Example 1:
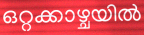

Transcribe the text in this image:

ഒറ്റക്കാഴ്ചയിൽ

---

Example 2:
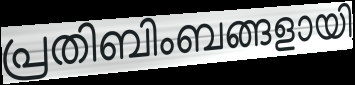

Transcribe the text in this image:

പ്രതിബിംബങ്ങളായി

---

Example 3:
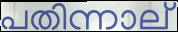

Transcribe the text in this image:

പതിന്നാല്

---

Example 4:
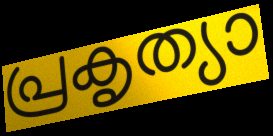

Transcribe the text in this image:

പ്രകൃത്യാ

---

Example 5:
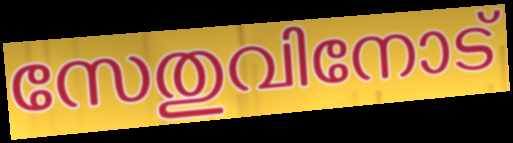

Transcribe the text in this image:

സേതുവിനോട്